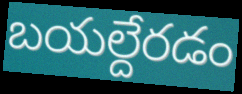
బయల్దేరడం